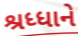
શ્રધ્ધાને